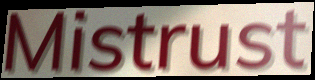
Mistrust